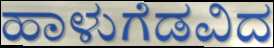
ಹಾಳುಗೆಡವಿದ